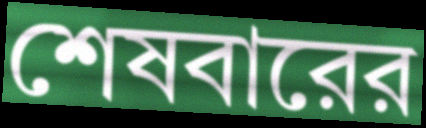
শেষবারের